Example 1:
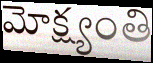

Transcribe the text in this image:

మోక్ష్యంతి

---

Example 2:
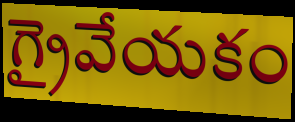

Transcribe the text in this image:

గ్రైవేయకం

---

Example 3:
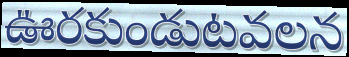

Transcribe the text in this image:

ఊరకుండుటవలన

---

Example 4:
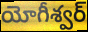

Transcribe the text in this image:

యోగీశ్వర్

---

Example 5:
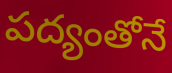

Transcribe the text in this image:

పద్యంతోనే